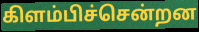
கிளம்பிச்சென்றன